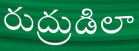
రుద్రుడిలా